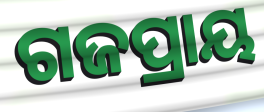
ଗଜପ୍ରାୟ